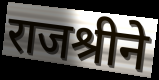
राजश्रीने